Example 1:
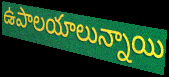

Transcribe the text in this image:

ఉపాలయాలున్నాయి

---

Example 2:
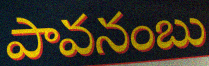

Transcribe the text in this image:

పావనంబు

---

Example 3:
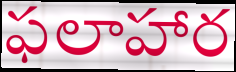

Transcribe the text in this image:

ఫలాహార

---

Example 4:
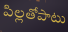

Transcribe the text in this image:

పిల్లతోపాటు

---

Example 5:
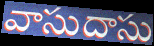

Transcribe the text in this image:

వాసుదాసు